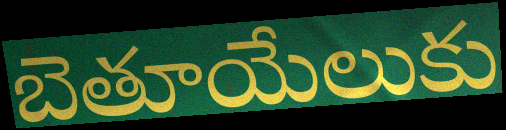
బెతూయేలుకు